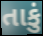
તાકું